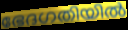
ഭേദഗതിയിൽ